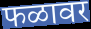
फळावर